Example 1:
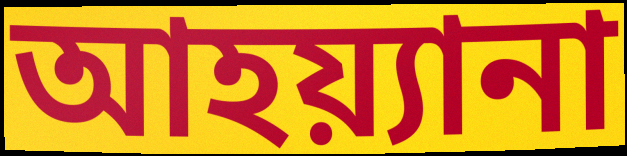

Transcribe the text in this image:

আহয়্যানা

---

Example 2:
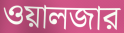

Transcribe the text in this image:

ওয়ালজার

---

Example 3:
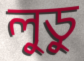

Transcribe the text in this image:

লুডু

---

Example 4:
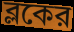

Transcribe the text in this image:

ব্লকের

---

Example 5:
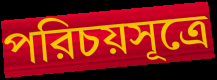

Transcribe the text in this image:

পরিচয়সূত্রে